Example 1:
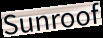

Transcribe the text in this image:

Sunroof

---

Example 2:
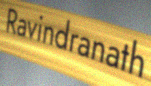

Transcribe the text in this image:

Ravindranath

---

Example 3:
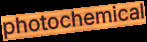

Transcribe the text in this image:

photochemical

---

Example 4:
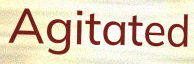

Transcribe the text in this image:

Agitated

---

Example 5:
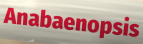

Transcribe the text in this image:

Anabaenopsis